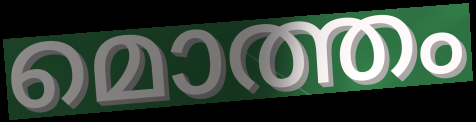
മൊത്തം